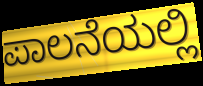
ಪಾಲನೆಯಲ್ಲಿ